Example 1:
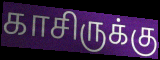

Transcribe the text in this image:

காசிருக்கு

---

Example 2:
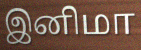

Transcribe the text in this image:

இனிமா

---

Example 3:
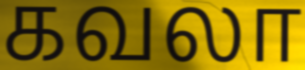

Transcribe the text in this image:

கவலா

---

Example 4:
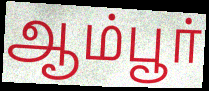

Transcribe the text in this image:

ஆம்பூர்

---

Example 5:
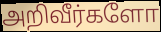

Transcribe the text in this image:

அறிவீர்களோ